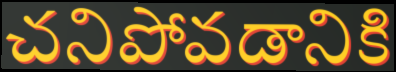
చనిపోవడానికి